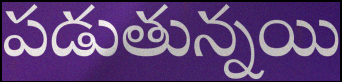
పడుతున్నయి